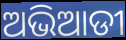
ଅଭିଆଡୀ